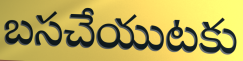
బసచేయుటకు